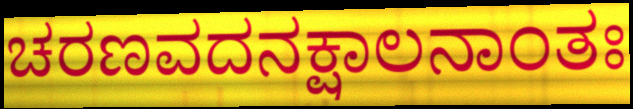
ಚರಣವದನಕ್ಷಾಲನಾಂತಃ